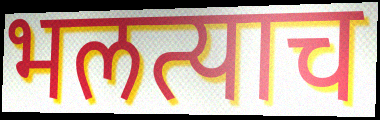
भलत्याच